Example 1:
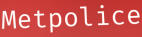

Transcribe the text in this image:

Metpolice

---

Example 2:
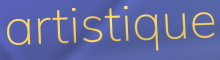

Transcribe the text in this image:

artistique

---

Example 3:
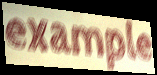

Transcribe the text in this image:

example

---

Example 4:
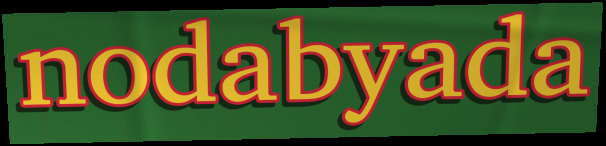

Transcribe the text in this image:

nodabyada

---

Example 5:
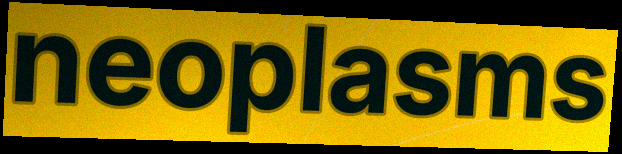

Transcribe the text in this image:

neoplasms